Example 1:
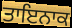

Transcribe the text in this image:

ਤਾਇਨਾਕ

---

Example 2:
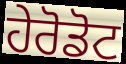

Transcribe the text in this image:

ਹੇਰੋਡੋਟ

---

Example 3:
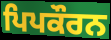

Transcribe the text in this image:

ਪਿਪਕੌਰਨ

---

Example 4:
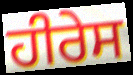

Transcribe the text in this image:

ਹੀਰੇਸ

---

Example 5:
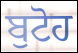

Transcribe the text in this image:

ਬੁਟੋਹ